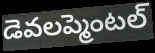
డెవలప్మెంటల్